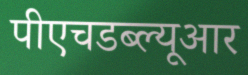
पीएचडब्ल्यूआर